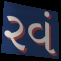
રવં